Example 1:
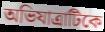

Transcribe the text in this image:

অভিযাত্রাটিকে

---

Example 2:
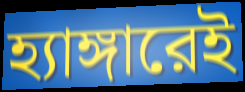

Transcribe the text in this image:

হ্যাঙ্গারেই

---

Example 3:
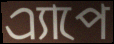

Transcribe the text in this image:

এ্যাপে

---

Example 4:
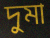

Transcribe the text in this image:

দুমা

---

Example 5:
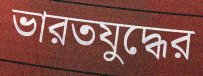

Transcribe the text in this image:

ভারতযুদ্ধের